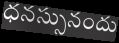
ధనస్సునందు